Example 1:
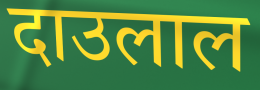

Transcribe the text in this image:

दाउलाल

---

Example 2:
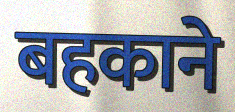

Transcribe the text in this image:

बहकाने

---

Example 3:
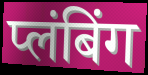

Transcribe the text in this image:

प्लंबिंग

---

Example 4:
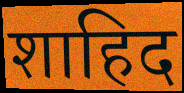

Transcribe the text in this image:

शाहिद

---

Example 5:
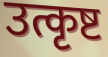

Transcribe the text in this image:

उत्कृष्ट